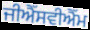
ਜੀਐੱਸਵੀਐੱਮ